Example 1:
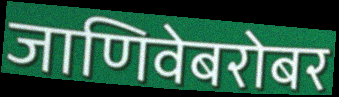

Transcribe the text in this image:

जाणिवेबरोबर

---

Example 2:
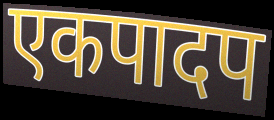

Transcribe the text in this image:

एकपादप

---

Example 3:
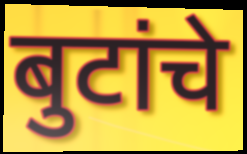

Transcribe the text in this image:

बुटांचे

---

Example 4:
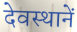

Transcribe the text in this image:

देवस्थानें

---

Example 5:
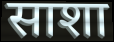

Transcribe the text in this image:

साशा